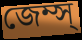
জেম্স্